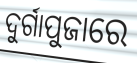
ଦୁର୍ଗାପୁଜାରେ